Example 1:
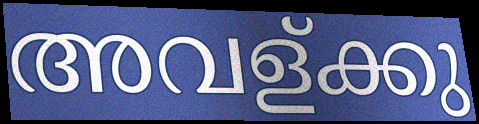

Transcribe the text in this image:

അവള്ക്കു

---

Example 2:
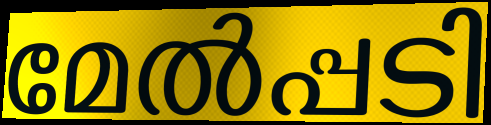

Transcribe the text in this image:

മേൽപ്പടി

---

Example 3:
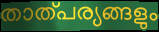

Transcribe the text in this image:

താത്പര്യങ്ങളും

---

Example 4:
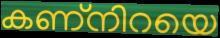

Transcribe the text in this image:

കണ്നിറയെ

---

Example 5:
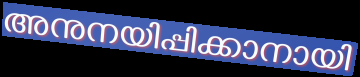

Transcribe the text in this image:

അനുനയിപ്പിക്കാനായി